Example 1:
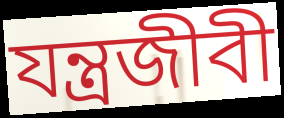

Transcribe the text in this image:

যন্ত্রজীবী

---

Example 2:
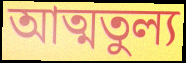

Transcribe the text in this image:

আত্মতুল্য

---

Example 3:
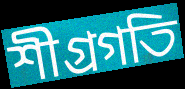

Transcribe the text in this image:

শীগ্রগতি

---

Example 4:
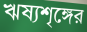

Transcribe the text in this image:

ঋষ্যশৃঙ্গের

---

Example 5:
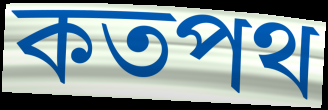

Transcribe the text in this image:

কতপথ